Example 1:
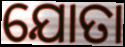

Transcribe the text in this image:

ଯୋତା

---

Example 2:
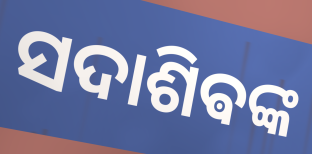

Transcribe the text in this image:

ସଦାଶିଵଙ୍କ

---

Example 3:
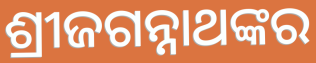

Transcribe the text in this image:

ଶ୍ରୀଜଗନ୍ନାଥଙ୍କର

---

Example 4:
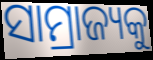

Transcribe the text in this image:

ସାମ୍ରାଜ୍ୟକୁ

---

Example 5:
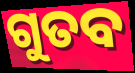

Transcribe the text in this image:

ଗୁତବ